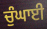
ਚੁੰਘਾਈ